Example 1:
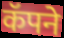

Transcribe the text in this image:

कॅपने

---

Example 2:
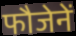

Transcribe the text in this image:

फौजेनें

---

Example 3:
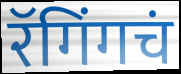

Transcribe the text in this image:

रॅगिंगचं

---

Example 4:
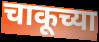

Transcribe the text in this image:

चाकूच्या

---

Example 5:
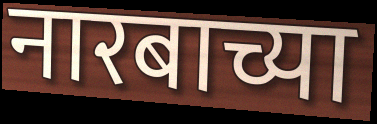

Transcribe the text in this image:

नारबाच्या